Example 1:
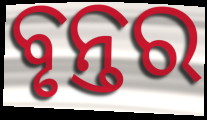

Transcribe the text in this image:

ବୃନ୍ତର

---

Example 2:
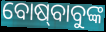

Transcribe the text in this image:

ବୋଷ୍‍ବାବୁଙ୍କ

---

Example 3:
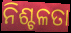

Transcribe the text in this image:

ନିଶ୍ଚଳତା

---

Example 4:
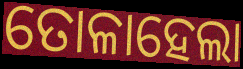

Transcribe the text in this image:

ତୋଳାହେଲା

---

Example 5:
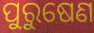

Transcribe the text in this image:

ପୁରୁଷେଣ